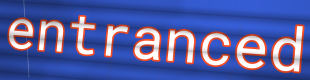
entranced